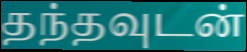
தந்தவுடன்